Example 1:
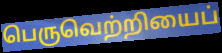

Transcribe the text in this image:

பெருவெற்றியைப்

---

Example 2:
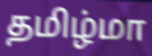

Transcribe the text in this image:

தமிழ்மா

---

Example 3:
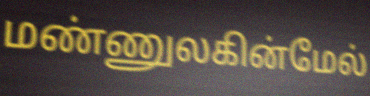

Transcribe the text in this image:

மண்ணுலகின்மேல்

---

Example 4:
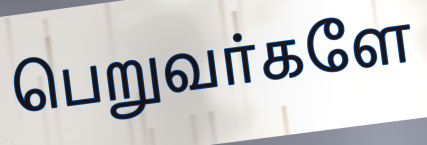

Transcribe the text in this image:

பெறுவர்களே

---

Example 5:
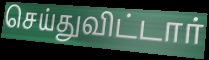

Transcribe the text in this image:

செய்துவிட்டார்